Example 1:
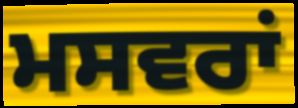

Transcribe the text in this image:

ਮਸਵਰਾਂ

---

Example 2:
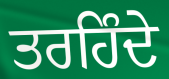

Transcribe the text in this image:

ਤਰਹਿੰਦੇ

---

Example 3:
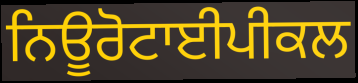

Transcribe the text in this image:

ਨਿਊਰੋਟਾਈਪੀਕਲ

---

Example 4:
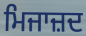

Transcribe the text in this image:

ਮਿਜਾਜ਼ਦ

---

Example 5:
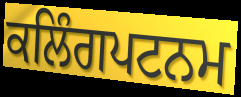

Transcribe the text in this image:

ਕਲਿੰਗਪਟਨਮ